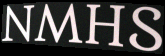
NMHS